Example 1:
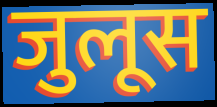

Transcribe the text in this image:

जुलूस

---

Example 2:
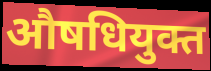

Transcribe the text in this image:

औषधियुक्त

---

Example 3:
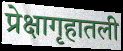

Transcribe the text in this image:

प्रेक्षागृहातली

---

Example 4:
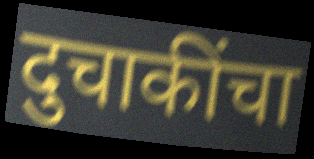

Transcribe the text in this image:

दुचाकींचा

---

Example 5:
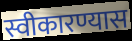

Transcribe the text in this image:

स्वीकारण्यास